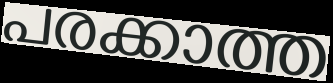
പരക്കാത്ത